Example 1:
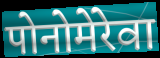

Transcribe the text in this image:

पोनोमेरेवा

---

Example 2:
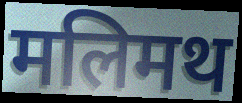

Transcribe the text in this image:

मलिमथ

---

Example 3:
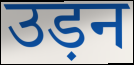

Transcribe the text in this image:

उड़न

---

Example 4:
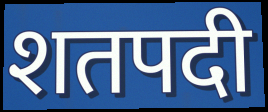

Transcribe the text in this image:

शतपदी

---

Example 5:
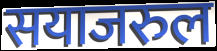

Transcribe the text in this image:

सयाजरुल